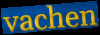
vachen